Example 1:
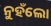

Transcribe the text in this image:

ନୁହଁଲୋ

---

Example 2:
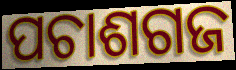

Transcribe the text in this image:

ପଚାଶଗଜ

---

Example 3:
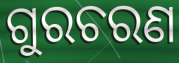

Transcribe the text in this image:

ଗୁରଚରଣ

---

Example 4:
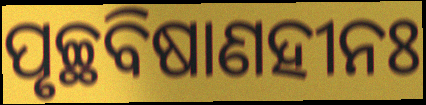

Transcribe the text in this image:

ପୃଚ୍ଛବିଷାଣହୀନଃ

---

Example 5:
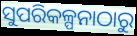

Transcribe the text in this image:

ସୁପରିକଳ୍ପନାଠାରୁ